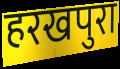
हरखपुरा